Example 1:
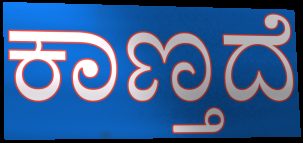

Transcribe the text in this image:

ಕಾಣ್ತದೆ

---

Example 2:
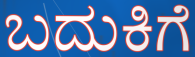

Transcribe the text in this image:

ಬದುಕಿಗೆ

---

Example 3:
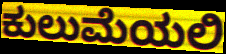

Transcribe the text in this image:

ಕುಲುಮೆಯಲಿ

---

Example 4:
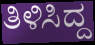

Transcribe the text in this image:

ತಿಳಿಸಿದ್ದ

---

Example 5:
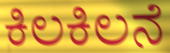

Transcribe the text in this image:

ಕಿಲಕಿಲನೆ